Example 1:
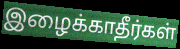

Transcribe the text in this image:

இழைக்காதீர்கள்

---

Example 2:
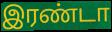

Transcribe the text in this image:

இரண்டா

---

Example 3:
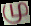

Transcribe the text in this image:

மு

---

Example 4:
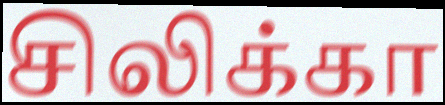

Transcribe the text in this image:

சிலிக்கா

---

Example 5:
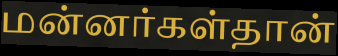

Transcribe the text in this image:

மன்னர்கள்தான்